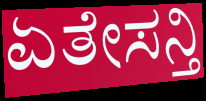
ಏತೇಸನ್ತಿ